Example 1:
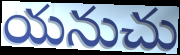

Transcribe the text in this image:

యనుచు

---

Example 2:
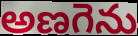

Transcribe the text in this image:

అణగెను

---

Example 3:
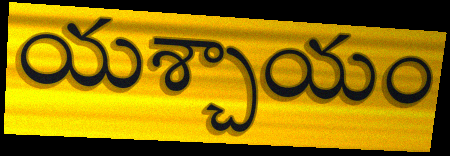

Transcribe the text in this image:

యశ్చాయం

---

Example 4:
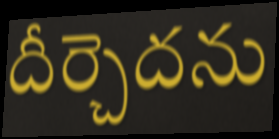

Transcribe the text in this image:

దీర్చెదను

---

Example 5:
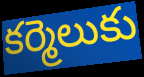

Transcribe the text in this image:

కర్మెలుకు